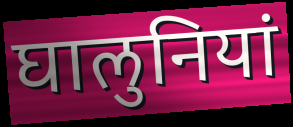
घालुनियां